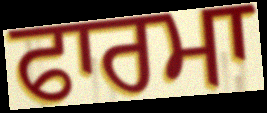
ਫਾਰਮਾ